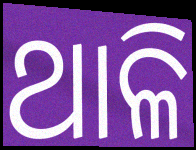
ଥାଳି